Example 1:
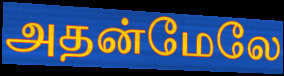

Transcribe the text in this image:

அதன்மேலே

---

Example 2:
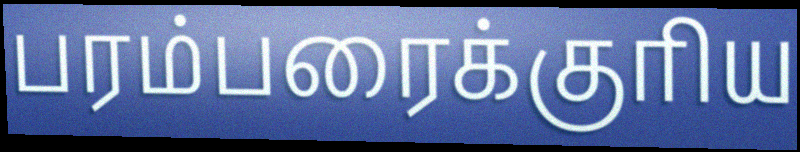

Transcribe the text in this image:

பரம்பரைக்குரிய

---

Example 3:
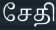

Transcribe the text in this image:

சேதி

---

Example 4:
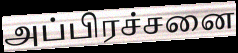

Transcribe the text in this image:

அப்பிரச்சனை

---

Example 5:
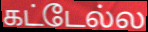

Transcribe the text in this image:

கட்டேல்ல